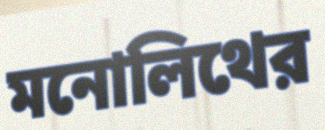
মনোলিথের